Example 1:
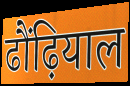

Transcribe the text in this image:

ढौंढ़ियाल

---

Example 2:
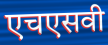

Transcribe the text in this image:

एचएसवी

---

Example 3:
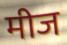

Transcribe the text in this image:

मीज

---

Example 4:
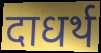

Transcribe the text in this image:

दाधर्थ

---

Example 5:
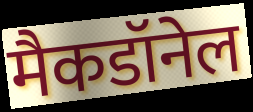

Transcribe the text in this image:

मैकडॉनेल